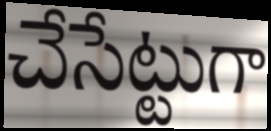
చేసేట్టుగా